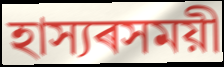
হাস্যৰসময়ী